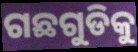
ଗଛଗୁଡିକୁ